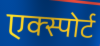
एक्‍स्पोर्ट